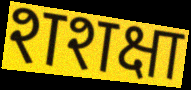
शशक्षा